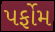
પર્ફોમ